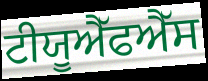
ਟੀਯੂਐੱਫਐੱਸ